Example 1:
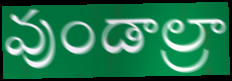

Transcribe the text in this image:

వుండాల్రా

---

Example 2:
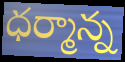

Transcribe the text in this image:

ధర్మాన్న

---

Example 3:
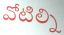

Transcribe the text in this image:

వోటిల్ని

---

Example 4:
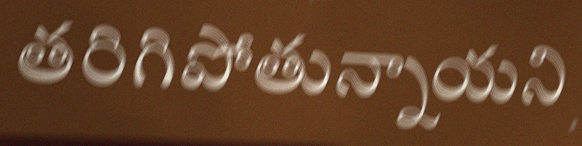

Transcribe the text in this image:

తరిగిపోతున్నాయని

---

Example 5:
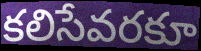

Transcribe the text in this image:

కలిసేవరకూ